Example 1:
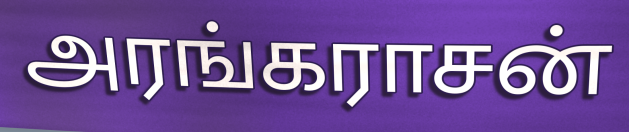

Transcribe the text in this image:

அரங்கராசன்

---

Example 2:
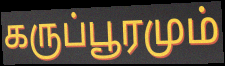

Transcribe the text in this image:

கருப்பூரமும்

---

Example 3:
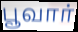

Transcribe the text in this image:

பூவார்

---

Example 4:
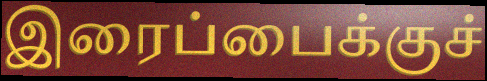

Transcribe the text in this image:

இரைப்பைக்குச்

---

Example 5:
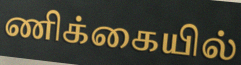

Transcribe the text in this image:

ணிக்கையில்